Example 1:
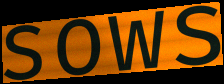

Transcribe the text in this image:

sows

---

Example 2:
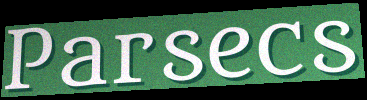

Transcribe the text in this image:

Parsecs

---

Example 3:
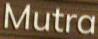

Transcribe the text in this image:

Mutra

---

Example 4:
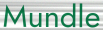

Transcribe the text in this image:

Mundle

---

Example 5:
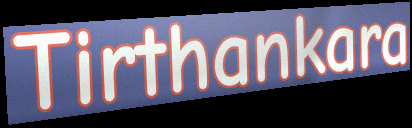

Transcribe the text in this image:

Tirthankara